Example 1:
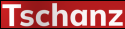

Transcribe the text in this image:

Tschanz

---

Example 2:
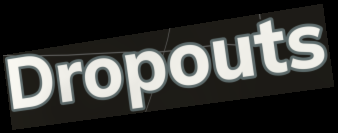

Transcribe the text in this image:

Dropouts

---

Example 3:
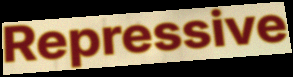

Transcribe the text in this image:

Repressive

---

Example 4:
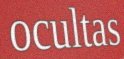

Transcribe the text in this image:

ocultas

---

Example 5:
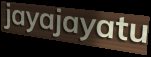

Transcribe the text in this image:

jayajayatu